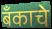
बँकाचे